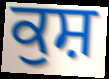
ਕੁਸ਼